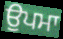
ਉਪਮਾ